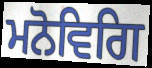
ਮਨੋਵਿਗਿ